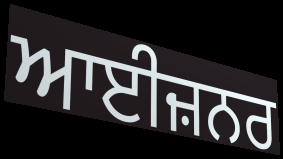
ਆਈਜ਼ਨਰ